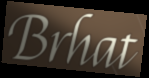
Brhat